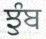
ਝੁੰਬ